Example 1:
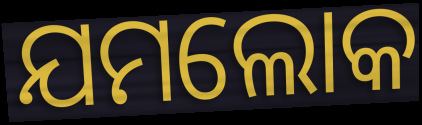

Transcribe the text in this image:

ଯମଲୋକ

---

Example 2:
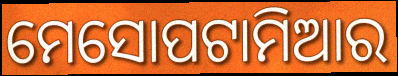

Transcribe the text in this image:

ମେସୋପଟାମିଆର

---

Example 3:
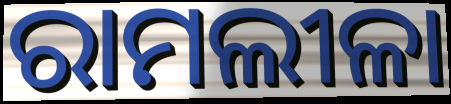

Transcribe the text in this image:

ରାମଲୀଳା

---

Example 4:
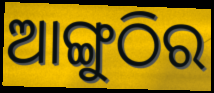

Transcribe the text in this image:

ଆଙ୍ଗୁଠିର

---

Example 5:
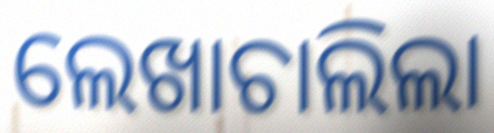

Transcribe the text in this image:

ଲେଖାଚାଲିଲା